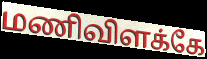
மணிவிளக்கே